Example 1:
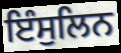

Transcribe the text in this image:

ਇੰਸੁਲਿਨ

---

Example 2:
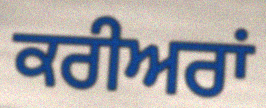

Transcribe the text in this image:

ਕਰੀਅਰਾਂ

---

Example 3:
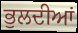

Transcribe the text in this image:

ਭੁਲਦੀਆਂ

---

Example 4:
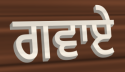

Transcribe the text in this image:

ਗਵਾਏ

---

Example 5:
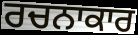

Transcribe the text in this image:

ਰਚਨਾਕਾਰ